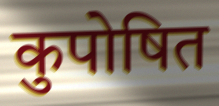
कुपोषित